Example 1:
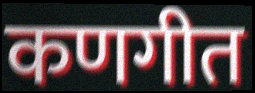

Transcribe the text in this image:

कणगीत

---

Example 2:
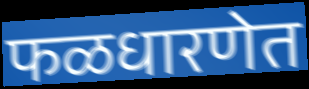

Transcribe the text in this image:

फळधारणेत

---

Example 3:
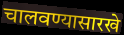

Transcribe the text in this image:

चालवण्यासारखे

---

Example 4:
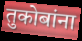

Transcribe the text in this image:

तुकोबांना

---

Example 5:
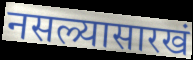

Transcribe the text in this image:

नसल्यासारखं